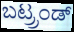
ಬಟ್ರ್ರಂಡ್